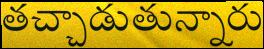
తచ్చాడుతున్నారు